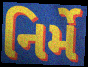
નિર્મે